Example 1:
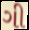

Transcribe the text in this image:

ગી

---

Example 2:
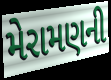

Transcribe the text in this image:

મેરામણની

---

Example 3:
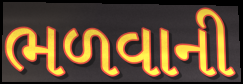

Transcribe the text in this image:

ભળવાની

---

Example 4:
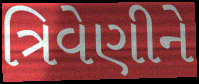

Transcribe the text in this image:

ત્રિવેણીને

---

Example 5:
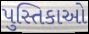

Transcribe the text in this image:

પુસ્તિકાઓ